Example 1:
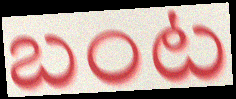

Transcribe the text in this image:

బంట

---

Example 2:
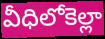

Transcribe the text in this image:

వీధిలోకెల్లా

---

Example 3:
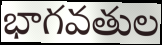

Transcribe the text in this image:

భాగవతుల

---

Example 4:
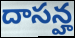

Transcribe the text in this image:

దాసన్హ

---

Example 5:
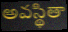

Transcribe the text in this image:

అవస్థితా